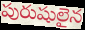
పురుషులైన